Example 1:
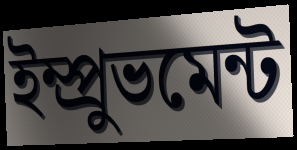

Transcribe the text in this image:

ইম্প্রুভমেন্ট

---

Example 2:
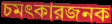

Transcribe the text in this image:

চমৎকারজনক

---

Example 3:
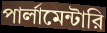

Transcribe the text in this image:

পার্লামেন্টারি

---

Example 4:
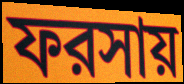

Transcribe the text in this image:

ফরসায়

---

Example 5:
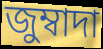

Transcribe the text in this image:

জুম্বাদা